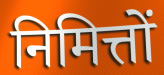
निमित्तों